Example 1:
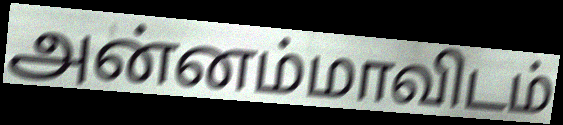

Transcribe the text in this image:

அன்னம்மாவிடம்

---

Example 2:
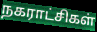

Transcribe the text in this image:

நகராட்சிகள்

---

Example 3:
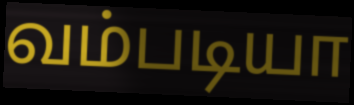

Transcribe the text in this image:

வம்படியா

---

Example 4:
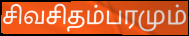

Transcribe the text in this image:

சிவசிதம்பரமும்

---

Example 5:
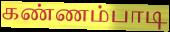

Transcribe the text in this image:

கண்ணம்பாடி